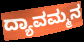
ದ್ಯಾವಮ್ಮನ